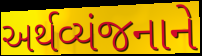
અર્થવ્યંજનાને